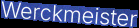
Werckmeister